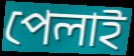
পেলাই